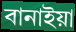
বানাইয়া